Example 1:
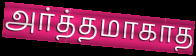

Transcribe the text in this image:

அர்த்தமாகாத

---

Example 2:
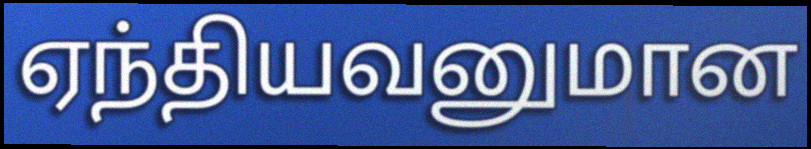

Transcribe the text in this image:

ஏந்தியவனுமான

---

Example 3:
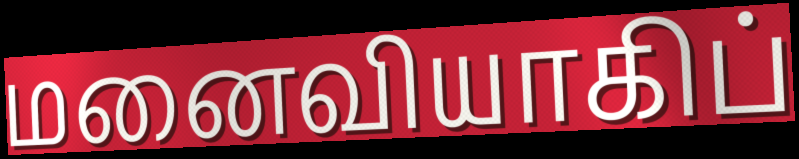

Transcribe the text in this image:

மனைவியாகிப்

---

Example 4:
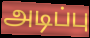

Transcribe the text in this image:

அடிப்பு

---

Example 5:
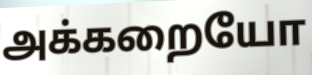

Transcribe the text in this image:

அக்கறையோ